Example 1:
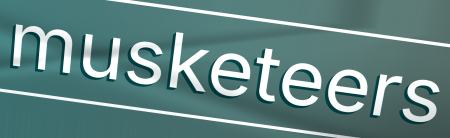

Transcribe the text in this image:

musketeers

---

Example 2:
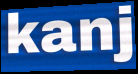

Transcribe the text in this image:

kanj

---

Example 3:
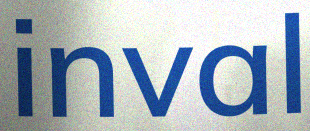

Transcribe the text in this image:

inval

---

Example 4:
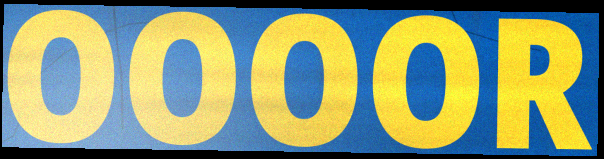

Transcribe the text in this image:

OOOOR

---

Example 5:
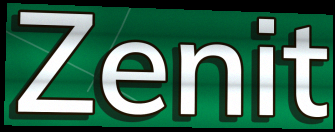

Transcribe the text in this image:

Zenit